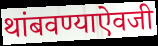
थांबवण्याऐवजी